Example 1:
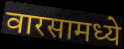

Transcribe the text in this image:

वारसामध्ये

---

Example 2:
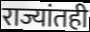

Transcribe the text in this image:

राज्यांतही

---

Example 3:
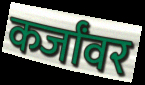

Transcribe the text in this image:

कर्जांवर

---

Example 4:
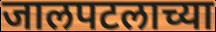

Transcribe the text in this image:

जालपटलाच्या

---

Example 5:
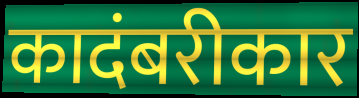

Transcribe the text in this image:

कादंबरीकार